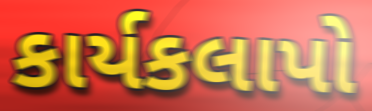
કાર્યકલાપો